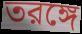
তরঙ্গে